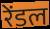
रेंडल